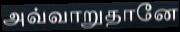
அவ்வாறுதானே